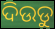
ଦିଉଡୁ